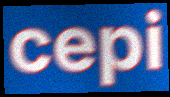
cepi